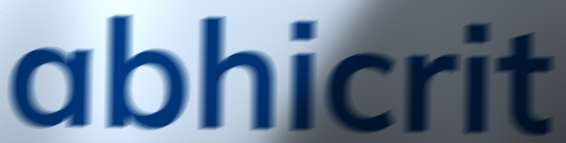
abhicrit